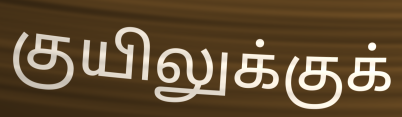
குயிலுக்குக்